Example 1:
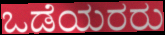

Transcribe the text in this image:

ಒಡೆಯರರು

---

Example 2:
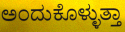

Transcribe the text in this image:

ಅಂದುಕೊಳ್ಳುತ್ತಾ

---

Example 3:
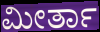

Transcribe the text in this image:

ಮೀರ್ತಾ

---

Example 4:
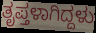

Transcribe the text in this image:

ತೃಪ್ತಳಾಗಿದ್ದಳು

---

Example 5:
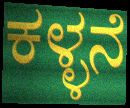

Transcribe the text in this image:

ಕಳ್ಳನೆ